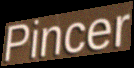
Pincer